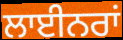
ਲਾਈਨਰਾਂ